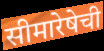
सीमारेषेची